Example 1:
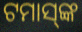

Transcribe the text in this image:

ଟମାସ୍‌ଙ୍କ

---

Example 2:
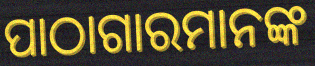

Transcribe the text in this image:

ପାଠାଗାରମାନଙ୍କ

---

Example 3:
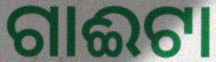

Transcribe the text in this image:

ଗାଈଟା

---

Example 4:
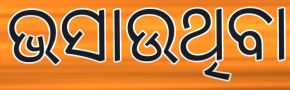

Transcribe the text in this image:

ଭସାଉଥିବା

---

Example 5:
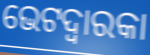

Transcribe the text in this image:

ଭେଟଦ୍ୱାରକା